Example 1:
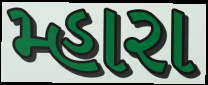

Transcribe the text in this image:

મ્હારા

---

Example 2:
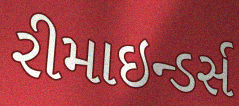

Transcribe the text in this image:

રીમાઇન્ડર્સ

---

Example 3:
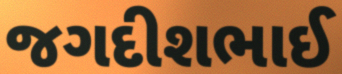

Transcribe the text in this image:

જગદીશભાઈ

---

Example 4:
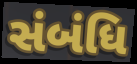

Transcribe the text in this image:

સંબંધિ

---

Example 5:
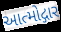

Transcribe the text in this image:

આત્મોદ્ગાર